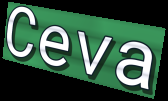
Ceva